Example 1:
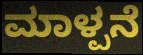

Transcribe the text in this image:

ಮಾಳ್ಪನೆ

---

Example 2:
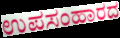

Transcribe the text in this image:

ಉಪಸಂಹಾರದ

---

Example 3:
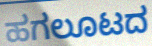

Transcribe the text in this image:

ಹಗಲೂಟದ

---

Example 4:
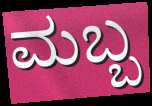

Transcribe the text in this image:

ಮಬ್ಬ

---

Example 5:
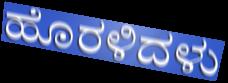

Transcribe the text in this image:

ಹೊರಳಿದಳು